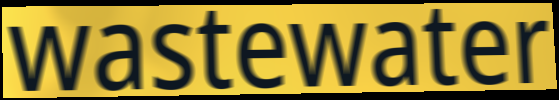
wastewater